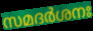
സമദർശനഃ